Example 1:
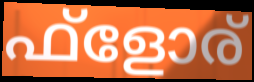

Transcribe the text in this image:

ഫ്ളോര്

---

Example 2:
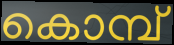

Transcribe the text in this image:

കൊമ്പ്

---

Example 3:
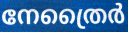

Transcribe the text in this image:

നേത്രൈർ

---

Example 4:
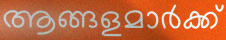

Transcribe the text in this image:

ആങ്ങളമാർക്ക്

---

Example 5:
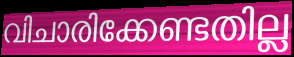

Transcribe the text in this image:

വിചാരിക്കേണ്ടതില്ല